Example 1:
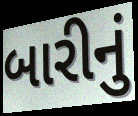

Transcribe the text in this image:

બારીનું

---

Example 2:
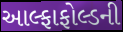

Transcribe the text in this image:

આલ્ફાફોલ્ડની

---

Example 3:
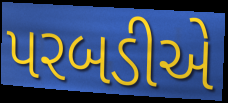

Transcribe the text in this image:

પરબડીએ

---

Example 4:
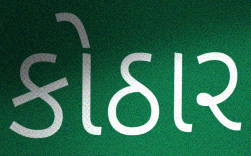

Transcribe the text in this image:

કોઠાર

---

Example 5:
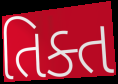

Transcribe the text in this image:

તિક્ત